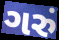
ગરું